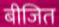
बीजित